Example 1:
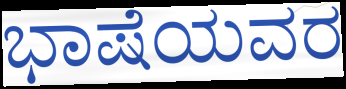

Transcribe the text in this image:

ಭಾಷೆಯವರ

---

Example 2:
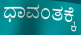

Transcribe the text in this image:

ಧಾವಂತಕ್ಕೆ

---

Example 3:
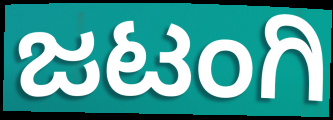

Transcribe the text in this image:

ಜಟಂಗಿ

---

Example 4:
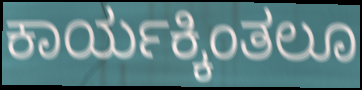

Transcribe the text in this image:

ಕಾರ್ಯಕ್ಕಿಂತಲೂ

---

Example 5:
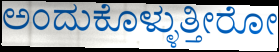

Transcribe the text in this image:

ಅಂದುಕೊಳ್ಳುತ್ತೀರೋ